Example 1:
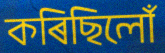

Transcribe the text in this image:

কৰিছিলোঁ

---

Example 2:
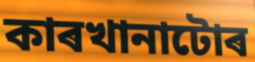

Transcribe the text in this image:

কাৰখানাটোৰ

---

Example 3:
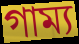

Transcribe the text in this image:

গাম্য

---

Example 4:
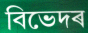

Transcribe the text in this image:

বিভেদৰ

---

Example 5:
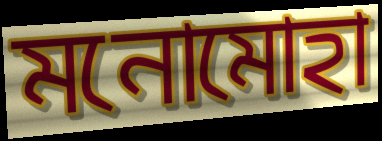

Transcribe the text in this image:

মনোমোহা